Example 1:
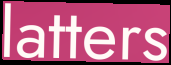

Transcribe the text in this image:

latters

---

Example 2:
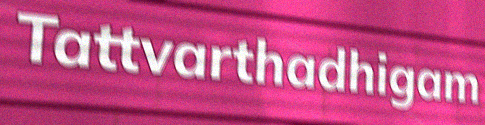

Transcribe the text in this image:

Tattvarthadhigam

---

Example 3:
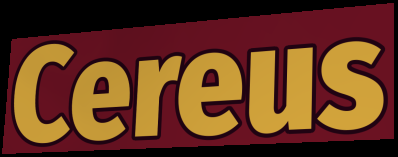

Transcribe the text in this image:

Cereus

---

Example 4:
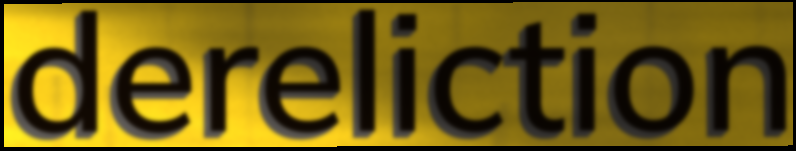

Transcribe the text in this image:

dereliction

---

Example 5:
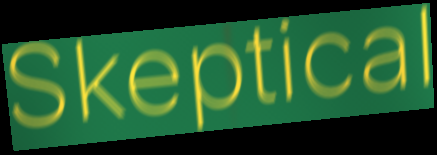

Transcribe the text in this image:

Skeptical